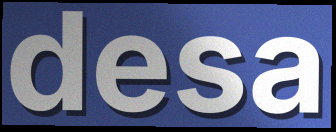
desa